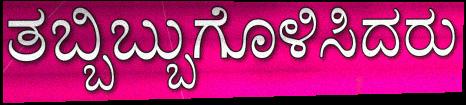
ತಬ್ಬಿಬ್ಬುಗೊಳಿಸಿದರು